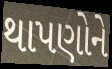
થાપણોને